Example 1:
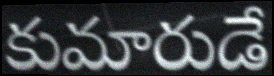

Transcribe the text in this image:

కుమారుడే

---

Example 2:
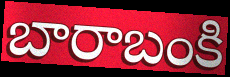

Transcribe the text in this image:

బారాబంకి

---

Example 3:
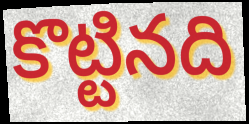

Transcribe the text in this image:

కొట్టినది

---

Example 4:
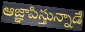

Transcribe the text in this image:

ఆజ్ఞాపిస్తున్నాడే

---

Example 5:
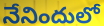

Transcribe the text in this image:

నేనిందులో